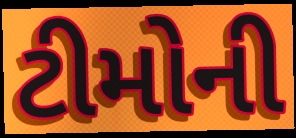
ટીમોની